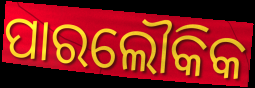
ପାରଲୌକିକ